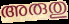
അരുതു